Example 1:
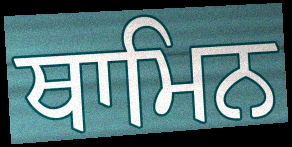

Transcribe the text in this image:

ਥਾਮਿਨ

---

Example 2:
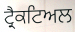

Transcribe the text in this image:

ਟ੍ਰੈਕਟਿਅਲ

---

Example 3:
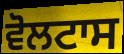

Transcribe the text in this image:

ਵੋਲਟਾਸ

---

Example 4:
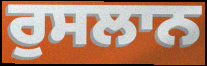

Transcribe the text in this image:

ਰੁਸਲਾਨ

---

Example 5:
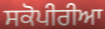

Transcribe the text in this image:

ਸਕੋਪੀਰੀਆ